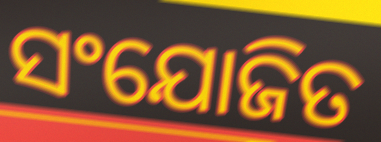
ସଂଯୋଜିତ